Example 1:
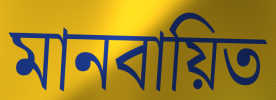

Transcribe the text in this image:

মানবায়িত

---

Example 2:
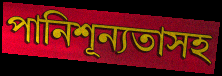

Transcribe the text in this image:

পানিশূন্যতাসহ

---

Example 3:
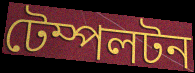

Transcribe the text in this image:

টেম্পলটন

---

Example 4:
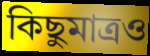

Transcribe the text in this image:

কিছুমাত্রও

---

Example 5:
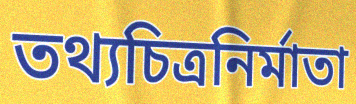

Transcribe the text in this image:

তথ্যচিত্রনির্মাতা